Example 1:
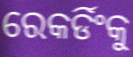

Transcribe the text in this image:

ରେକର୍ଡିଂକୁ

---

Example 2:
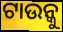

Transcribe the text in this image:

ଟାଉନ୍କୁ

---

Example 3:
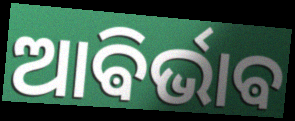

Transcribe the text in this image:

ଆଵିର୍ଭାଵ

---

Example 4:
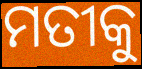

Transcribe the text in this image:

ମତୀକୁ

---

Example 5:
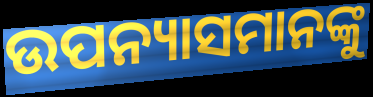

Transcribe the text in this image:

ଉପନ୍ୟାସମାନଙ୍କୁ